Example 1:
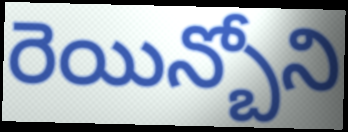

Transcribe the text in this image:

రెయిన్బోని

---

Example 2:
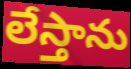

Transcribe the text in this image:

లేస్తాను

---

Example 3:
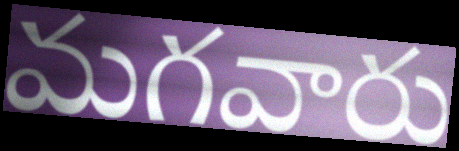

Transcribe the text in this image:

మగవారు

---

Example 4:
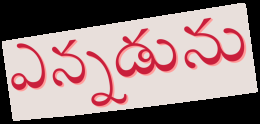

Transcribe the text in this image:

ఎన్నడును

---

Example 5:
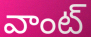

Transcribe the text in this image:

వాంట్